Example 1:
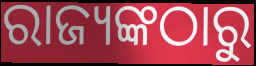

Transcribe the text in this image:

ରାଜ୍ୟଙ୍କଠାରୁ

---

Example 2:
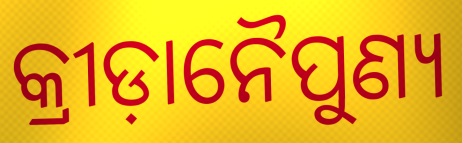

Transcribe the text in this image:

କ୍ରୀଡ଼ାନୈପୁଣ୍ୟ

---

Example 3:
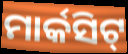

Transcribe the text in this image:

ମାର୍କସିଟ୍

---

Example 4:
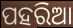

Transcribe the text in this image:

ପହରିଆ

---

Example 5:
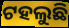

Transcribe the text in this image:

ଟହଲୁଛି